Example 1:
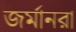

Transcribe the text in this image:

জর্মানরা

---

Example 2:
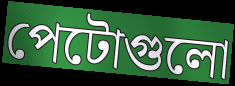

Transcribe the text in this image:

পেটোগুলো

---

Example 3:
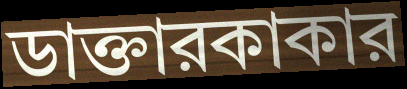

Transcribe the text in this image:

ডাক্তারকাকার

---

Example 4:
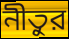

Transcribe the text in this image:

নীতুর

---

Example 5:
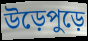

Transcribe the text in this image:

উড়েপুড়ে